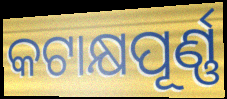
କଟାକ୍ଷପୂର୍ଣ୍ଣ